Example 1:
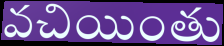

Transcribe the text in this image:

వచియింతు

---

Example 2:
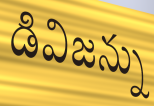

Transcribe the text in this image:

డివిజన్ను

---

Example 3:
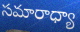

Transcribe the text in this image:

సమారాధ్యా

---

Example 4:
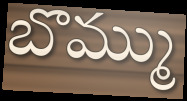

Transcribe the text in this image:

బొమ్ము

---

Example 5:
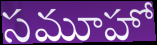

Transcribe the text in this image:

సమూహో